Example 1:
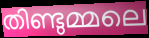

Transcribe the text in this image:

തിണ്ടുമ്മലെ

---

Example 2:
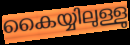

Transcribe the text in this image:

കൈയ്യിലുള്ളു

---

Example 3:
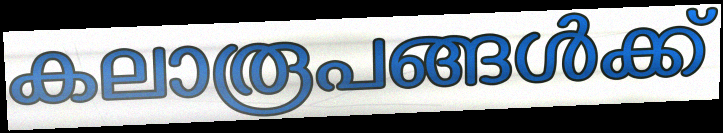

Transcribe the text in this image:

കലാരൂപങ്ങൾക്ക്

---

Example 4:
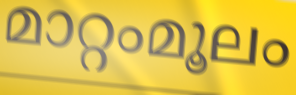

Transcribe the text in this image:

മാറ്റംമൂലം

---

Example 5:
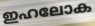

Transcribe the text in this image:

ഇഹലോക